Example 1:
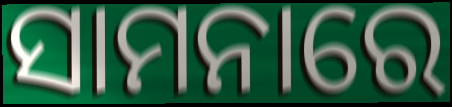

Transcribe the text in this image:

ସାମନାରେ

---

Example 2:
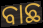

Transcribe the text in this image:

ବାଛ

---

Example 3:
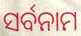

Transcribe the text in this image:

ସର୍ବନାମ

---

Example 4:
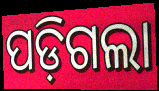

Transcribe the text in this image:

ପଡ଼ିଗଲା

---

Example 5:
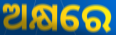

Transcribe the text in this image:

ଅକ୍ଷରେ